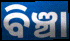
ବିଞ୍ଚା